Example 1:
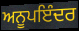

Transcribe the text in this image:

ਅਨੂਪਇੰਦਰ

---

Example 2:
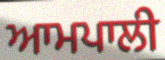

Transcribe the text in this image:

ਆਮਪਾਲੀ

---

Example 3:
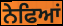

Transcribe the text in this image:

ਨੇਫਿਆਂ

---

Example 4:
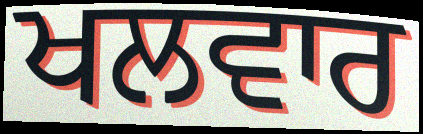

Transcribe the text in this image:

ਖਲਵਾਰ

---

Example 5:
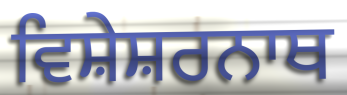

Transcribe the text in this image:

ਵਿਸ਼ੇਸ਼ਰਨਾਥ